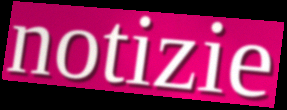
notizie